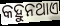
କହୁନଥାଏ